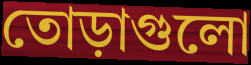
তোড়াগুলো